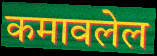
कमावलेल